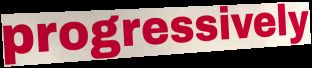
progressively